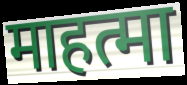
माहत्मा